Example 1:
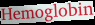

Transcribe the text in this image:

Hemoglobin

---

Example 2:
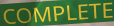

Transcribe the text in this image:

COMPLETE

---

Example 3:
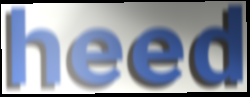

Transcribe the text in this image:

heed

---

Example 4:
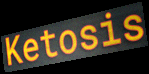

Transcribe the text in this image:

Ketosis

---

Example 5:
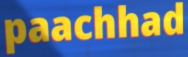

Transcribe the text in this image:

paachhad